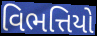
વિભત્તિયો